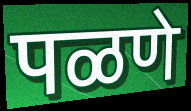
पळणे